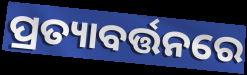
ପ୍ରତ୍ୟାବର୍ତ୍ତନରେ